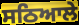
ਸਠਿਆਲੇ